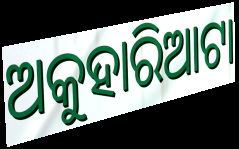
ଅକୁହାରିଆଟା